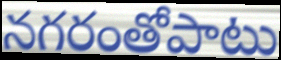
నగరంతోపాటు